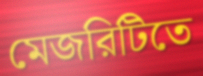
মেজরিটিতে